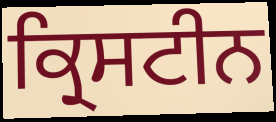
ਕ੍ਰਿਸਟੀਨ